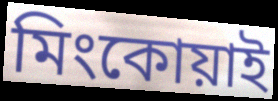
মিংকোয়াই